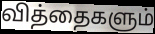
வித்தைகளும்